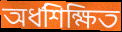
অর্ধশিক্ষিত